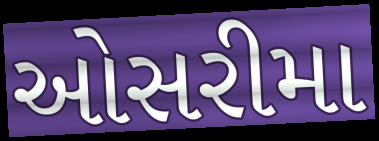
ઓસરીમા